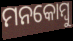
ମନକୋମ୍ବୁ